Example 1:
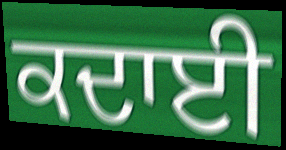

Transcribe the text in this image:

ਕਦਾਈ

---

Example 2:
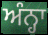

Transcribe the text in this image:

ਅੰਨ੍ਹ੍ਹਾ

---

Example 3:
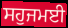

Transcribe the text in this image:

ਸਹੁਜਮਈ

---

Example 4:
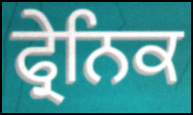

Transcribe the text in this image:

ਫ੍ਰੇਨਿਕ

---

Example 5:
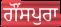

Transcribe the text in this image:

ਗੌਂਸਪੁਰਾ